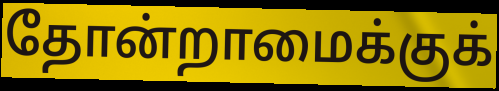
தோன்றாமைக்குக்